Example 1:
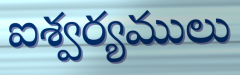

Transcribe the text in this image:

ఐశ్వర్యములు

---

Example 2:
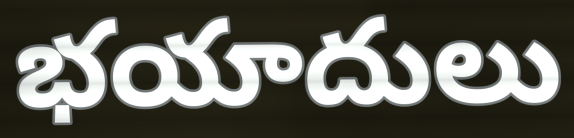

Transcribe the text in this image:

భయాదులు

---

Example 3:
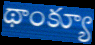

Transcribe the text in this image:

థాంక్యూ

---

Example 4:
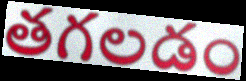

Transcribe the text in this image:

తగలడం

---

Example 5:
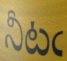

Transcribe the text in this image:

నీటఁ